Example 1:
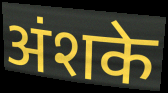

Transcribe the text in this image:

अंशके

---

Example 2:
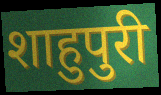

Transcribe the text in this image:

शाहुपुरी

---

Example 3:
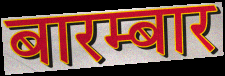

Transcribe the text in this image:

बारम्‍बार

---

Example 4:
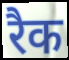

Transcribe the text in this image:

रैक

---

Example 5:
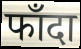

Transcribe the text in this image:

फाँदा